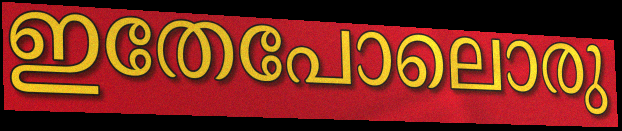
ഇതേപോലൊരു